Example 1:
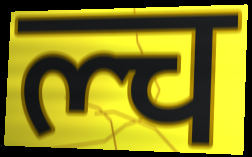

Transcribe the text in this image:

ल्च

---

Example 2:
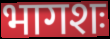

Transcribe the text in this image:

भागशः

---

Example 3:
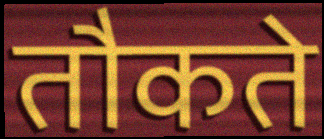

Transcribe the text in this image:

तौकते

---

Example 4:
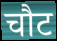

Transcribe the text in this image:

चौट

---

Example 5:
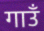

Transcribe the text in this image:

गाउँ